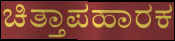
ಚಿತ್ತಾಪಹಾರಕ